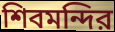
শিবমন্দির